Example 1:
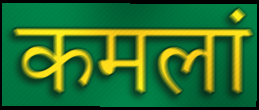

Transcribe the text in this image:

कमलां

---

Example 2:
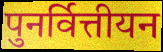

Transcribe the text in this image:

पुनर्वित्तीयन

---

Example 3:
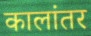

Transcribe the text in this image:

कालांतर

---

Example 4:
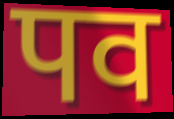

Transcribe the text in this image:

पव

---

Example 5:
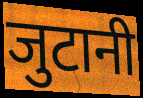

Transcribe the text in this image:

जुटानी